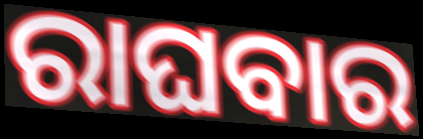
ରାଘବାର